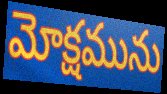
మోక్షమును